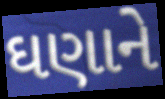
ઘણાને